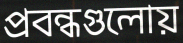
প্রবন্ধগুলোয়